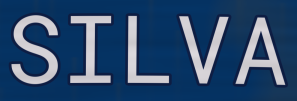
SILVA